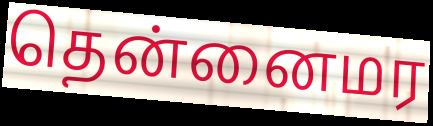
தென்னைமர